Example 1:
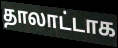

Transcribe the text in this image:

தாலாட்டாக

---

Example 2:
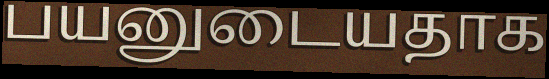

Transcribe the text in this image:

பயனுடையதாக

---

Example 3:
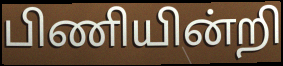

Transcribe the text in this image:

பிணியின்றி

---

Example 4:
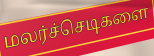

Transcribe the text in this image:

மலர்ச்செடிகளை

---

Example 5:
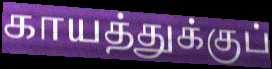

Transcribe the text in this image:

காயத்துக்குப்